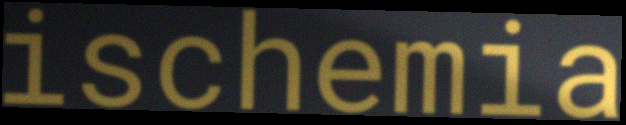
ischemia